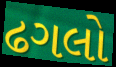
ઢગલો